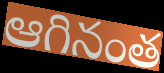
ఆగినంత